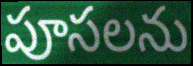
పూసలను